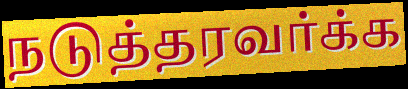
நடுத்தரவர்க்க